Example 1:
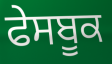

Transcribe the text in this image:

ਫੇਸਬੂਕ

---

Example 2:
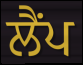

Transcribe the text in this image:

ਲੈਂਪ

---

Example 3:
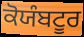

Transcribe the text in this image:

ਕੋਯੰਬਟੂਰ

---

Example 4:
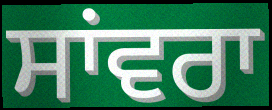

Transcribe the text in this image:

ਸਾਂਵਰਾ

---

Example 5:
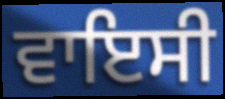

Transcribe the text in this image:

ਵਾਇਸੀ